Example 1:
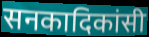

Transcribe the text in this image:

सनकादिकांसी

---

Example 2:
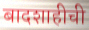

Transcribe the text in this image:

बादशाहीची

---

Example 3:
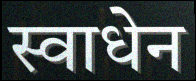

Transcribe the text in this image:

स्वाधेन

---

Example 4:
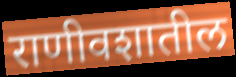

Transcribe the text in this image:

राणीवशातील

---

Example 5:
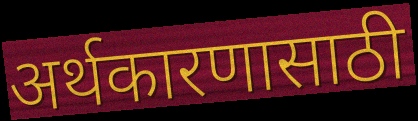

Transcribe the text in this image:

अर्थकारणासाठी